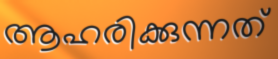
ആഹരിക്കുന്നത്